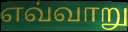
எவ்வாறு